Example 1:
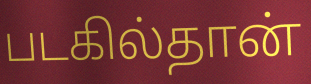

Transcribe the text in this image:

படகில்தான்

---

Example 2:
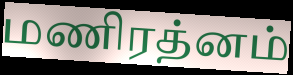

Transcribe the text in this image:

மணிரத்னம்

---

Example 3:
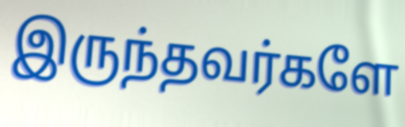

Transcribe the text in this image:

இருந்தவர்களே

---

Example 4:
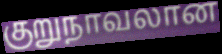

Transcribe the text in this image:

குறுநாவலான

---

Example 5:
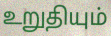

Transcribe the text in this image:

உறுதியும்